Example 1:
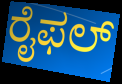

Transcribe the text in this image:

ರೈಫಲ್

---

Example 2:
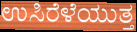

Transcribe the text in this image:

ಉಸಿರೆಳೆಯುತ್ತ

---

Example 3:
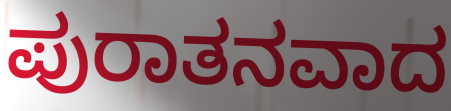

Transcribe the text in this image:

ಪುರಾತನವಾದ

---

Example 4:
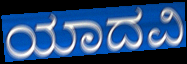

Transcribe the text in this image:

ಯಾದವಿ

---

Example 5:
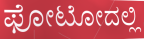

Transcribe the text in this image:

ಫೋಟೋದಲ್ಲಿ